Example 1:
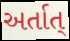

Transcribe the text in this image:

અર્તાત્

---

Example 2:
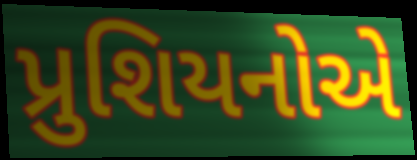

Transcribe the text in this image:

પ્રુશિયનોએ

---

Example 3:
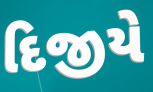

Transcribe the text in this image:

દિજીયે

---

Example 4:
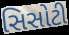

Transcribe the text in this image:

સિસોટી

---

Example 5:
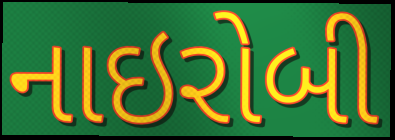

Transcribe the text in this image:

નાઇરોબી